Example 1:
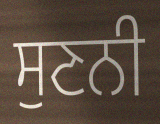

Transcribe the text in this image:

ਸੁਣਨੀ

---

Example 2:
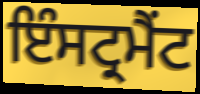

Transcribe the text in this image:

ਇੰਸਟ੍ਰਮੈਂਟ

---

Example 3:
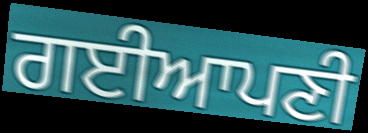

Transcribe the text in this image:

ਗਈਆਪਣੀ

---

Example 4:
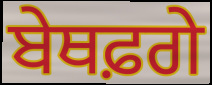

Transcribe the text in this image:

ਬੇਥਫ਼ਗੇ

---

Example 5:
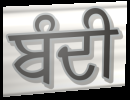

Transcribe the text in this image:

ਬੰਦੀ